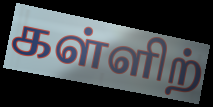
கள்ளிற்